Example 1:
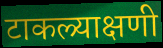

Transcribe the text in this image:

टाकल्याक्षणी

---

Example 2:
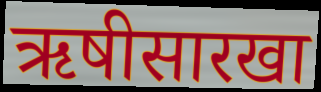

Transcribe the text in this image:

ऋषीसारखा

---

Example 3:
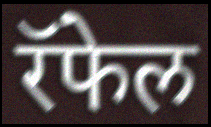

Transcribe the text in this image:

रॅफेल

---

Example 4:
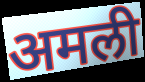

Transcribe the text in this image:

अमली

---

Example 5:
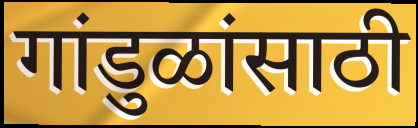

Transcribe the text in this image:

गांडुळांसाठी